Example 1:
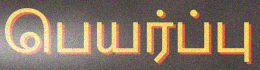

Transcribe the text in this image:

பெயர்ப்பு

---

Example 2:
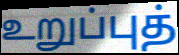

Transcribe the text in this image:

உறுப்புத்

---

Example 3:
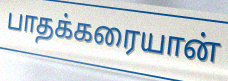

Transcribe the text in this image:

பாதக்கரையான்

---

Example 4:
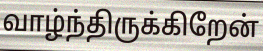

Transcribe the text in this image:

வாழ்ந்திருக்கிறேன்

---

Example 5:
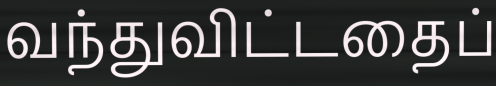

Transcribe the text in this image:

வந்துவிட்டதைப்